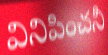
వినిపించనీ